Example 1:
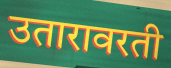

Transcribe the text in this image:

उतारावरती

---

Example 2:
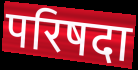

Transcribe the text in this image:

परिषदा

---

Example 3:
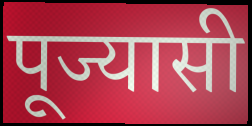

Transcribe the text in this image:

पूज्यासी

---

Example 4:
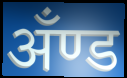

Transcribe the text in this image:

अँण्ड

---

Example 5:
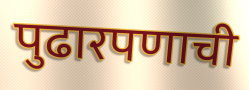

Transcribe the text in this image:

पुढारपणाची